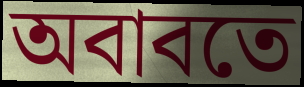
অবাবতে